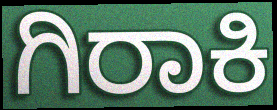
ಗಿರಾಕಿ